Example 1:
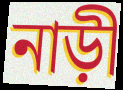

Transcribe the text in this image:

নাড়ী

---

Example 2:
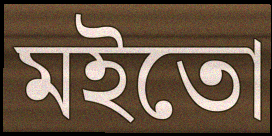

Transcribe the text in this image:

মইতো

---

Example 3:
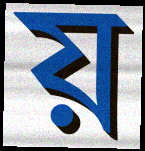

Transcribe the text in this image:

য়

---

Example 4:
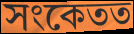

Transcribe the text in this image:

সংকেতত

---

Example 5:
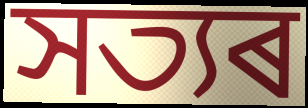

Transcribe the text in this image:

সত্যৰ